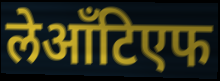
लेआँटिएफ